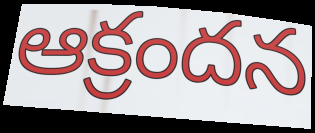
ఆక్రందన